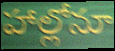
హాల్లోనూ